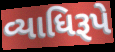
વ્યાધિરૂપે